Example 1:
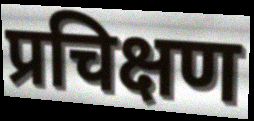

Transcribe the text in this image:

प्रचिक्षण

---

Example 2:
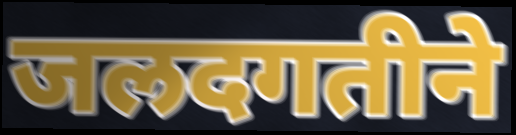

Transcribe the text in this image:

जलदगतीने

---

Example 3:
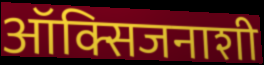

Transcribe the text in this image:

ऑक्सिजनाशी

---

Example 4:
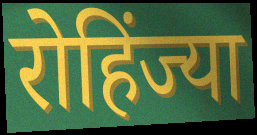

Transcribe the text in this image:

रोहिंज्या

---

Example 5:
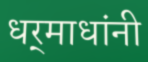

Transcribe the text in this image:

धर्माधांनी